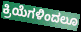
ಕ್ರಿಯೆಗಳಿಂದಲೂ